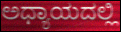
ಅಧ್ಯಾಯದಲ್ಲಿ